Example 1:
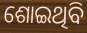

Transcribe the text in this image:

ଶୋଇଥିବି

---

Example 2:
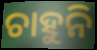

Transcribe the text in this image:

ଚାହୁନି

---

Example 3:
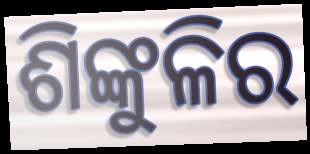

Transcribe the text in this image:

ଶିଙ୍କୁଳିର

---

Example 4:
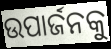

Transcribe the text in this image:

ଉପାର୍ଜନକୁ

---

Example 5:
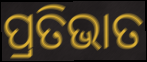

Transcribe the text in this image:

ପ୍ରତିଭାତ